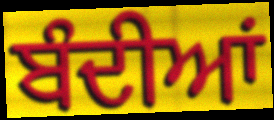
ਬੰਦੀਆਂ